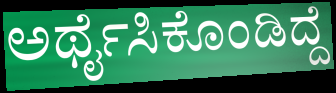
ಅರ್ಥೈಸಿಕೊಂಡಿದ್ದೆ